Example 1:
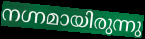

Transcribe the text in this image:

നഗ്നമായിരുന്നു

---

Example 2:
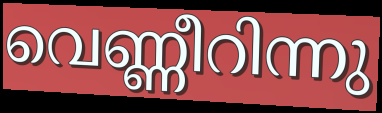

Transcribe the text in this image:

വെണ്ണീറിന്നു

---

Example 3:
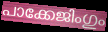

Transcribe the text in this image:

പാക്കേജിംഗും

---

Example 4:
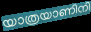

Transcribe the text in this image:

യാത്രയാണിനി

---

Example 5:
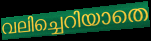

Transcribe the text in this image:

വലിച്ചെറിയാതെ